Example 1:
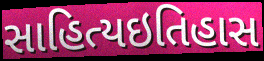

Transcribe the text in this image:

સાહિત્યઇતિહાસ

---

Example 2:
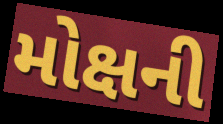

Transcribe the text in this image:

મોક્ષની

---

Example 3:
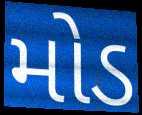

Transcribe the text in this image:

મોડ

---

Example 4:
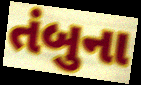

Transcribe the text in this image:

તંબુના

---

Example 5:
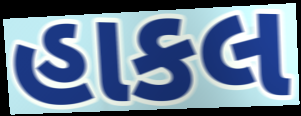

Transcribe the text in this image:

હાકલ